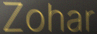
Zohar